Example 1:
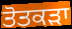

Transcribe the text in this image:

ਤੋਤਕੜਾ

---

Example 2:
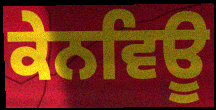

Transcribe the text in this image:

ਕੇਨਵਿਊ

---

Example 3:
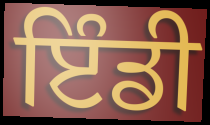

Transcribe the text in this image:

ਇੰਡੀ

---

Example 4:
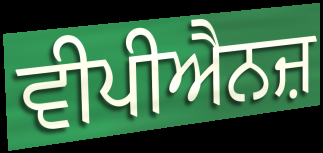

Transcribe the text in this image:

ਵੀਪੀਐਨਜ਼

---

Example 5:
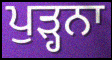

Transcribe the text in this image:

ਪੁੜ੍ਹਨਾ